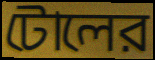
টোলের